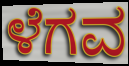
ಳೆಗವ